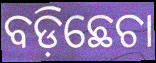
ବଡ଼ିଛେଚା